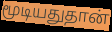
மூடியதுதான்